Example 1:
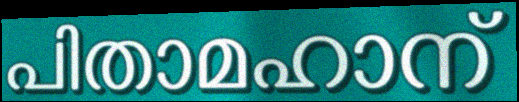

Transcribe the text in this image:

പിതാമഹാന്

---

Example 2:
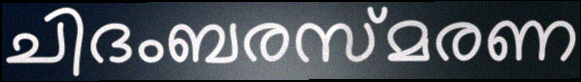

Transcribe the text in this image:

ചിദംബരസ്മരണ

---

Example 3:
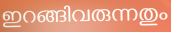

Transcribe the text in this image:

ഇറങ്ങിവരുന്നതും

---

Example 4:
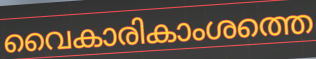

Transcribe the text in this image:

വൈകാരികാംശത്തെ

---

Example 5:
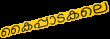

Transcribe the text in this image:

കൈപ്പാടകലെ